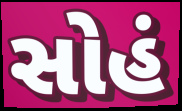
સોહં